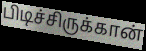
பிடிச்சிருக்கான்